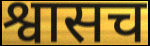
श्वासच